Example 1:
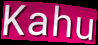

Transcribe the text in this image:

Kahu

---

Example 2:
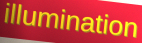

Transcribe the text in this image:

illumination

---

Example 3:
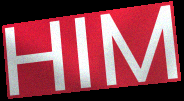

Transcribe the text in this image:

HIM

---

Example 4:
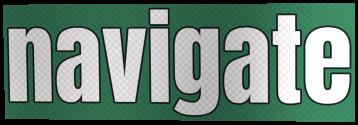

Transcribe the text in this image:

navigate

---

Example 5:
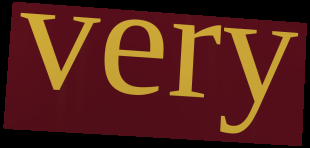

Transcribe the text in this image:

very